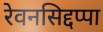
रेवनसिद्दप्पा